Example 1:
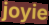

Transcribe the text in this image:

joyie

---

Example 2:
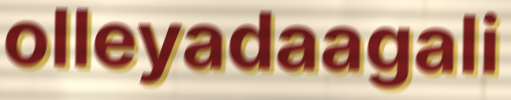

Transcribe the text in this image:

olleyadaagali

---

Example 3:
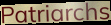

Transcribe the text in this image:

Patriarchs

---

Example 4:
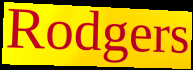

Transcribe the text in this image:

Rodgers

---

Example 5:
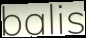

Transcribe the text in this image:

balis